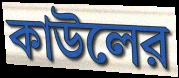
কাউলের